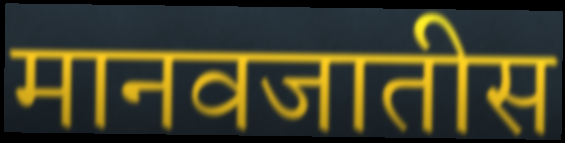
मानवजातीस